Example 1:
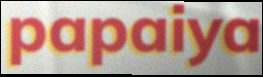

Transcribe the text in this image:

papaiya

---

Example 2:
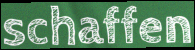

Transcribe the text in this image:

schaffen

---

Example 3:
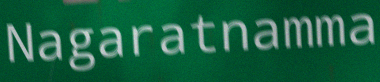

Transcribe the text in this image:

Nagaratnamma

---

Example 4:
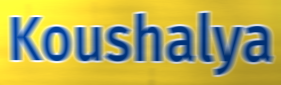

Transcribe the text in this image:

Koushalya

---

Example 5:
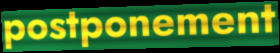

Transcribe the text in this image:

postponement